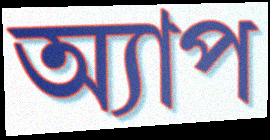
অ্যাপ